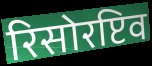
रिसोरप्टिव